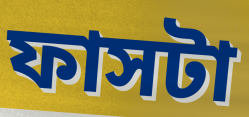
ফাসটা